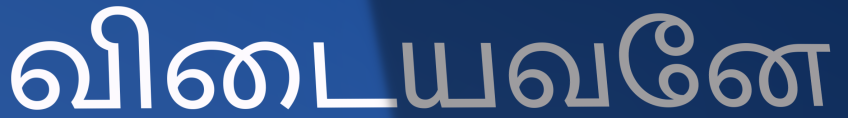
விடையவனே